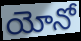
యోనో